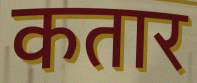
कतार